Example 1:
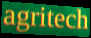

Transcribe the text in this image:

agritech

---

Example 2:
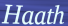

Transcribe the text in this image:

Haath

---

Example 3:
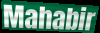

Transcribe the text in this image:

Mahabir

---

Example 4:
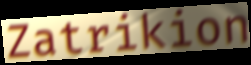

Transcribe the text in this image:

Zatrikion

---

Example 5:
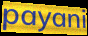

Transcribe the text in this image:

payani